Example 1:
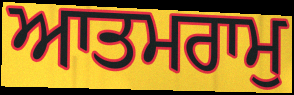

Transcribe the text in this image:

ਆਤਮਰਾਮੁ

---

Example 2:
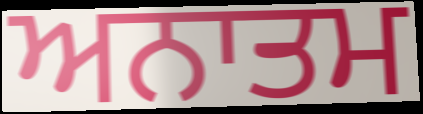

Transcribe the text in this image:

ਅਨਾਤਮ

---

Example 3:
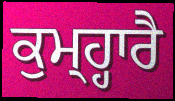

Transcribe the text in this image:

ਕੁਮ੍ਹ੍ਹਾਰੈ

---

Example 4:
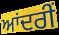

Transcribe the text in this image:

ਆਂਦਰੀਂ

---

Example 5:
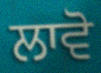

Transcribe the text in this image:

ਲਾਵੋ